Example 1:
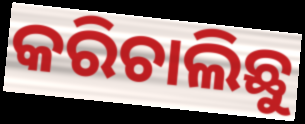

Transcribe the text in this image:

କରିଚାଲିଛୁ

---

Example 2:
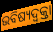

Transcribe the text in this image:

ଭବିଷ୍ୟଦ୍ବକ୍ତା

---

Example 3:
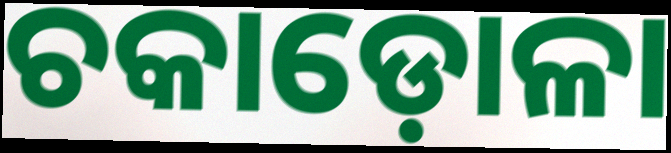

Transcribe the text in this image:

ଚକାଡ଼ୋଳା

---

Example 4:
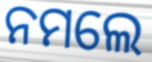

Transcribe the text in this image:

ନମଲେ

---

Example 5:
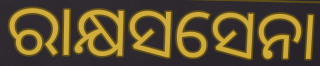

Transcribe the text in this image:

ରାକ୍ଷସସେନା